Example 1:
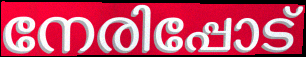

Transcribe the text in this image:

നേരിപ്പോട്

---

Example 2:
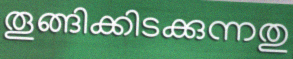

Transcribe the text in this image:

തൂങ്ങിക്കിടക്കുന്നതു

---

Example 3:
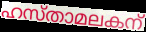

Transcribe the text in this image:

ഹസ്താമലകന്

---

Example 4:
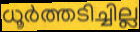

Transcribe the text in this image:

ധൂർത്തടിച്ചില്ല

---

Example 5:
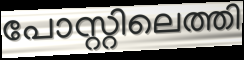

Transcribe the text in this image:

പോസ്റ്റിലെത്തി